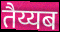
तैय्यब